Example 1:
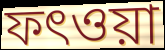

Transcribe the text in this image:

ফৎওয়া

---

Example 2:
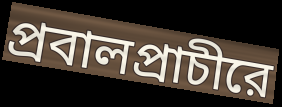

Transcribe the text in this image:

প্রবালপ্রাচীরে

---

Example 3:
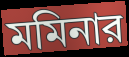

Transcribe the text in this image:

মমিনার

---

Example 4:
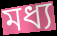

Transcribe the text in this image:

মধ্য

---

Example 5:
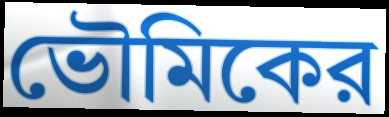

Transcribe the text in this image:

ভৌমিকের